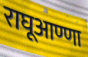
राघूआण्णा